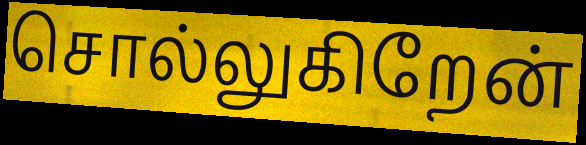
சொல்லுகிறேன்